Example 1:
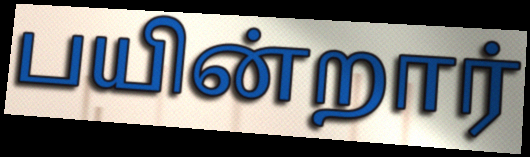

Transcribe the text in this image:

பயின்றார்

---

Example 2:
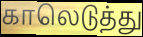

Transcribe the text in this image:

காலெடுத்து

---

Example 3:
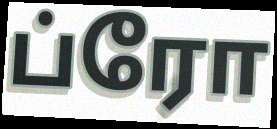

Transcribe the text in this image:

ப்ரோ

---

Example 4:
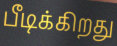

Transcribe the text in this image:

பீடிக்கிறது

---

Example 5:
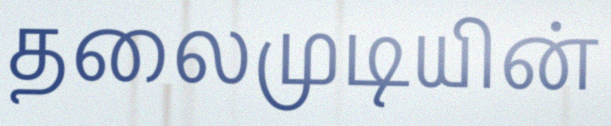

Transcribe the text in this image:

தலைமுடியின்